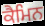
ਕੈਮਿਨ